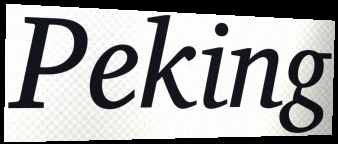
Peking